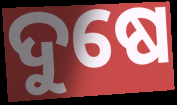
ଦୁଷେ